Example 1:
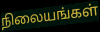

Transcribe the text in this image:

நிலையங்கள்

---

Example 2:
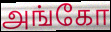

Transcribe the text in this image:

அங்கோ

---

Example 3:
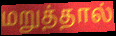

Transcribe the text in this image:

மறுத்தால்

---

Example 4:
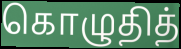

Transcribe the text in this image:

கொழுதித்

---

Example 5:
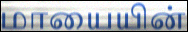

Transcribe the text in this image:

மாயையின்